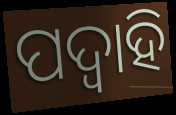
ପଦ୍ଵାହି